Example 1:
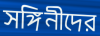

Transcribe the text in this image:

সঙ্গিনীদের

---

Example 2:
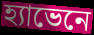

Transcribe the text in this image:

হ্যাভেনে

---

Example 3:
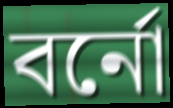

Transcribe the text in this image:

বর্নো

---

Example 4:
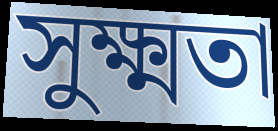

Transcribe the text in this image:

সুক্ষ্মতা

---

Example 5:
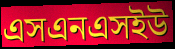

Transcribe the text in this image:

এসএনএসইউ